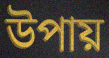
উপায়